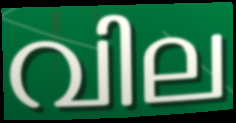
വില